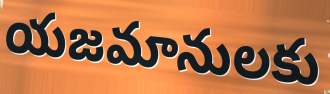
యజమానులకు